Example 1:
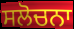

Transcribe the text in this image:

ਸਲੋਚਨਾ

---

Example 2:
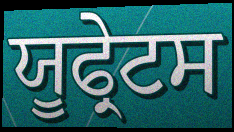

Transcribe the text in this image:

ਯੂਫ੍ਰੇਟਸ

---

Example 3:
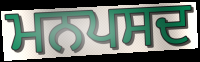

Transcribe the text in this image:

ਮਨਪਸਦ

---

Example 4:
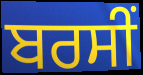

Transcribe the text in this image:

ਬਰਸੀਂ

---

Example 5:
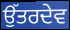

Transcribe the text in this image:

ਉੱਤਰਦੇਵ